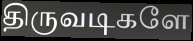
திருவடிகளே